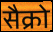
सैक्रो